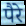
पैरे